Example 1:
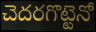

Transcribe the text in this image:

చెదరగొట్టెనో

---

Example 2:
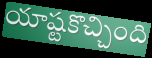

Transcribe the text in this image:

యాష్టకొచ్చింది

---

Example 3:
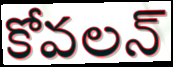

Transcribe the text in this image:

కోవలన్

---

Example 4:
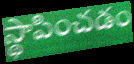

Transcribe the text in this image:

స్థాపించడం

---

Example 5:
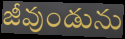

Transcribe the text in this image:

జీవుండును